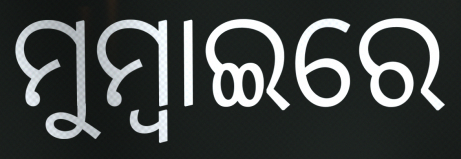
ମୁମ୍ୱାଇରେ